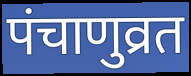
पंचाणुव्रत